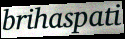
brihaspati